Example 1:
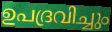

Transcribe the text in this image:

ഉപദ്രവിച്ചും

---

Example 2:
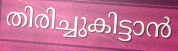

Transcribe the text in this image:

തിരിച്ചുകിട്ടാൻ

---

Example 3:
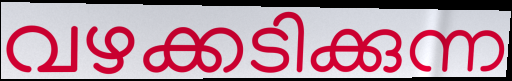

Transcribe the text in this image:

വഴക്കടിക്കുന്ന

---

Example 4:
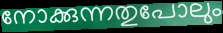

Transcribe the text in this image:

നോക്കുന്നതുപോലും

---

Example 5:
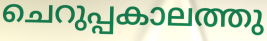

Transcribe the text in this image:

ചെറുപ്പകാലത്തു